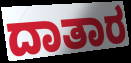
ದಾತಾರ